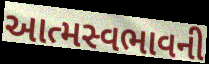
આત્મસ્વભાવની